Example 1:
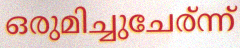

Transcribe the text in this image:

ഒരുമിച്ചുചേര്ന്ന്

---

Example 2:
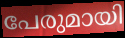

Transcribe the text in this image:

പേരുമായി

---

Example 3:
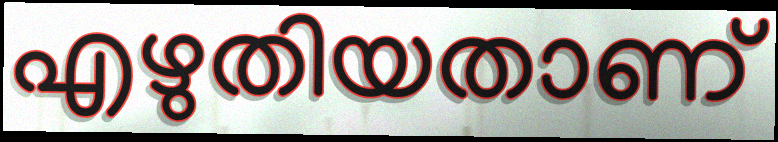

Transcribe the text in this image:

എഴുതിയതാണ്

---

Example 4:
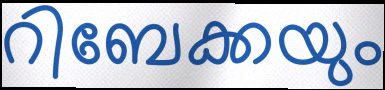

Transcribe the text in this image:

റിബേക്കയും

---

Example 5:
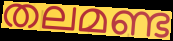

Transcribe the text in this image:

തലമണ്ട